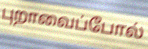
புறாவைப்போல்